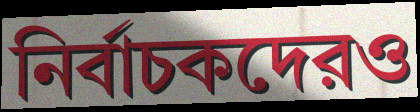
নির্বাচকদেরও